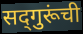
सद्‌गुरूंची